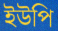
ইউপি